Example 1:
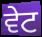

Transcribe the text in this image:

ਵੇਟ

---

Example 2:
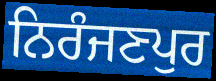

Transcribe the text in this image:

ਨਿਰੰਜਣਪੁਰ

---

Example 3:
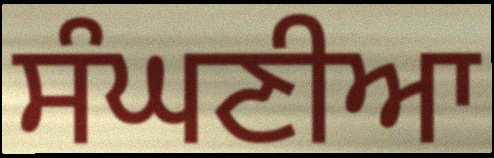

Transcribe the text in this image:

ਸੰਘਣੀਆ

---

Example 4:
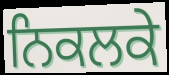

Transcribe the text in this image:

ਨਿਕਲਕੇ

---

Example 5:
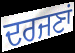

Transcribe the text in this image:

ਦਰਜਣਾਂ